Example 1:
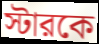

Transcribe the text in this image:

স্টারকে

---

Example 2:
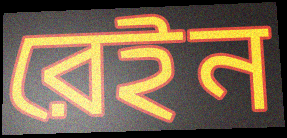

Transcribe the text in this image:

রেইন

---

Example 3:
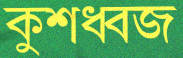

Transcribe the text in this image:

কুশধ্বজ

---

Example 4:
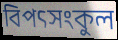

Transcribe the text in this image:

বিপৎসংকুল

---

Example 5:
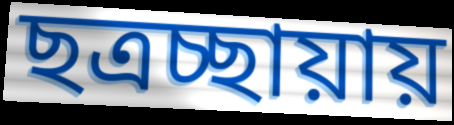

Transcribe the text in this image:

ছত্রচ্ছায়ায়